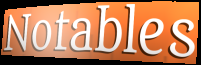
Notables